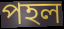
পহল